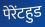
पेरेंटहुड